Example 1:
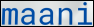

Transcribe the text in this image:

maani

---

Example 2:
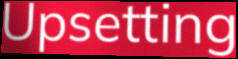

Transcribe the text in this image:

Upsetting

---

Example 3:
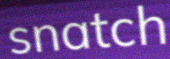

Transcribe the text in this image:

snatch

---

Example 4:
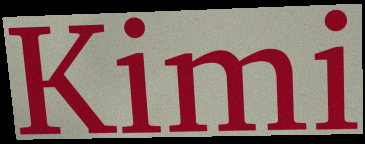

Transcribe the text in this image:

Kimi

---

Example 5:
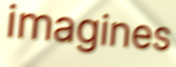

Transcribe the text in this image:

imagines